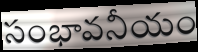
సంభావనీయం